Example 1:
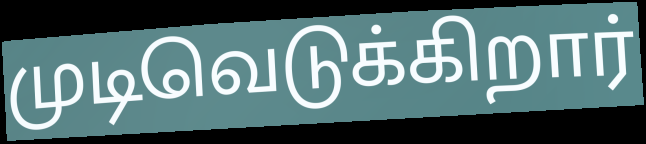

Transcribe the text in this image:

முடிவெடுக்கிறார்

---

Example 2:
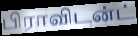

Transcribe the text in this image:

பிராவிடன்ட்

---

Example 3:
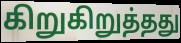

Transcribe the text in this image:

கிறுகிறுத்தது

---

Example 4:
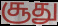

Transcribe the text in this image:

சூது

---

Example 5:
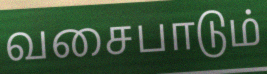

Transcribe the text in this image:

வசைபாடும்